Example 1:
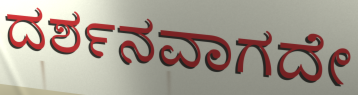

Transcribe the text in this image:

ದರ್ಶನವಾಗದೇ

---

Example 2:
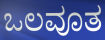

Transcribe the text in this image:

ಒಲವೂತ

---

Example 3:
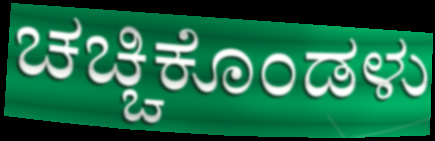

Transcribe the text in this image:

ಚಚ್ಚಿಕೊಂಡಳು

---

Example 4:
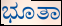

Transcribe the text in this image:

ಭೂತಾ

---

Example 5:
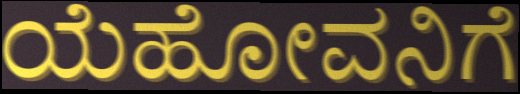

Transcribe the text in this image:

ಯೆಹೋವನಿಗೆ